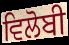
ਵਿਲੋਬੀ